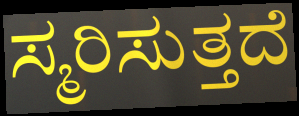
ಸ್ಮರಿಸುತ್ತದೆ